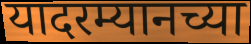
यादरम्यानच्या